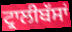
ਟ੍ਰਾਲੀਬੱਸਾਂ